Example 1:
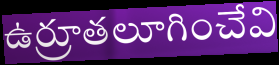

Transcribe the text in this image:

ఉర్రూతలూగించేవి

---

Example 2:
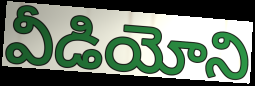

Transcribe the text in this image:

వీడియోని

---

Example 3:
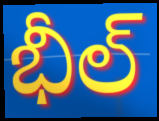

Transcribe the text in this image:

భీల్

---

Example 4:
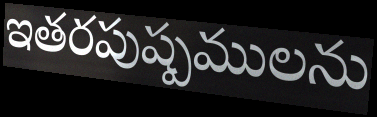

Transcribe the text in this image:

ఇతరపుష్పములను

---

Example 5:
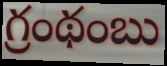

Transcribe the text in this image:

గ్రంథంబు